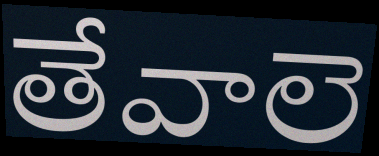
తేవాలె